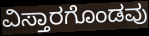
ವಿಸ್ತಾರಗೊಂಡವು